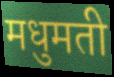
मधुमती